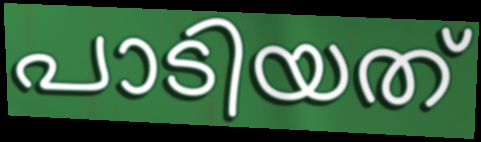
പാടിയത്